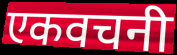
एकवचनी